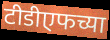
टीडीएफच्या